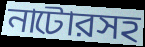
নাটোরসহ